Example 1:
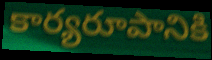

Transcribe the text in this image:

కార్యరూపానికి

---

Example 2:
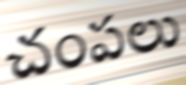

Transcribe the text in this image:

చంపలు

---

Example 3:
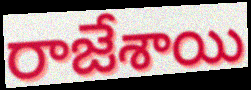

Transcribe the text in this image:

రాజేశాయి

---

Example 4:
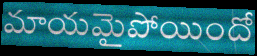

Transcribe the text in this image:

మాయమైపోయిందో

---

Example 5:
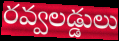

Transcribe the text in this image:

రవ్వలడ్డులు